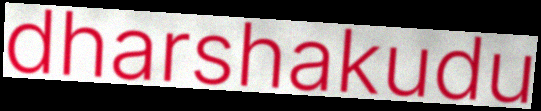
dharshakudu